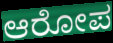
ಆರೋಪ